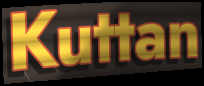
Kuttan